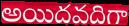
అయిదవదిగా